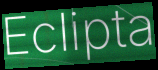
Eclipta